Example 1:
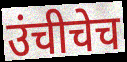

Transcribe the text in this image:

उंचीचेच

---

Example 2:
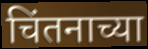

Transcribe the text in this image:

चिंतनाच्या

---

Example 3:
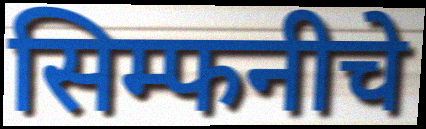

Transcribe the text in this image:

सिम्फनीचे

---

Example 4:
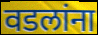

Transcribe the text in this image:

वडलांना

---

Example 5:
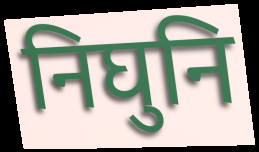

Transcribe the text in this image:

निघुनि